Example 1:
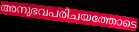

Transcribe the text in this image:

അനുഭവപരിചയത്തോടെ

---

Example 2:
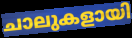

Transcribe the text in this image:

ചാലുകളായി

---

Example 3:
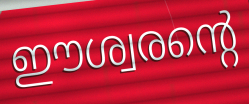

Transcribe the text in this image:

ഈശ്വരന്റെ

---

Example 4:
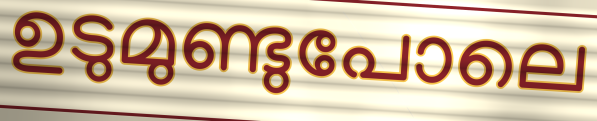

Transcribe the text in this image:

ഉടുമുണ്ടുപോലെ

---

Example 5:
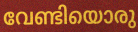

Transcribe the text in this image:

വേണ്ടിയൊരു